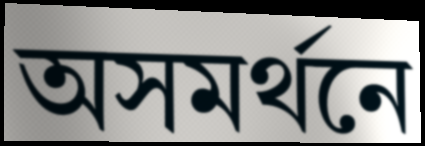
অসমর্থনে